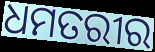
ଧମତରୀର